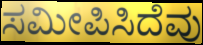
ಸಮೀಪಿಸಿದೆವು